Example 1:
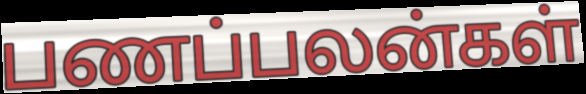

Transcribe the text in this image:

பணப்பலன்கள்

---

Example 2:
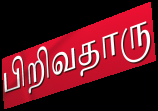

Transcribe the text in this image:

பிறிவதாரு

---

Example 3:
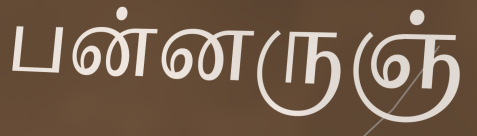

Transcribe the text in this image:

பன்னருஞ்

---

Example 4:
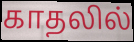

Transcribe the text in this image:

காதலில்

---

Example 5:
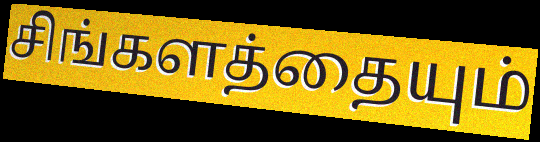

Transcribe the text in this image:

சிங்களத்தையும்